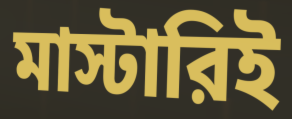
মাস্টারিই